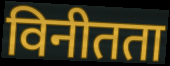
विनीतता